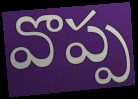
వొప్ప